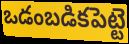
ఒడంబడికపెట్టె